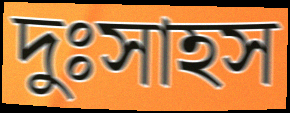
দুঃসাহস